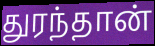
துரந்தான்